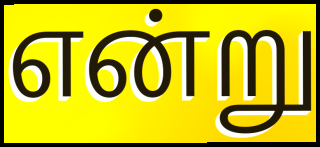
என்று